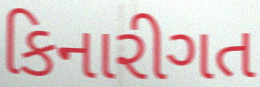
કિનારીગત